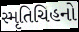
સ્મૃતિચિહનો